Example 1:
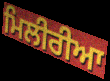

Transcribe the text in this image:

ਮਿਲੀਰੀਆ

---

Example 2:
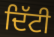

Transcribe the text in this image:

ਦਿੱਟੀ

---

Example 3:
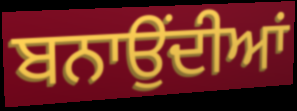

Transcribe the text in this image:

ਬਨਾਉਂਦੀਆਂ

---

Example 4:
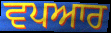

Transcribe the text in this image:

ਵਪਆਰ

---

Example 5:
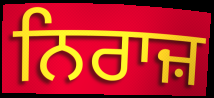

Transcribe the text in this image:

ਨਿਰਾਜ਼